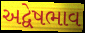
અદ્વેષભાવ